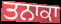
ਤਨਾਕਾ